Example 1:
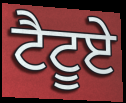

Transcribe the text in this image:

ਟੈਟੂਏ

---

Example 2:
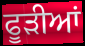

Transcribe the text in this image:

ਫੂੜੀਆਂ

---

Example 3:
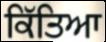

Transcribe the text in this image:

ਕਿੱਤਿਆ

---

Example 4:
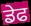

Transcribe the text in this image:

ਡੇਫ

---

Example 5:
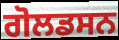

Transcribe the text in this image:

ਗੋਲਡਸਨ